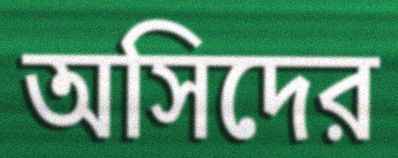
অসিদের